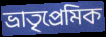
ভ্রাতৃপ্রেমিক